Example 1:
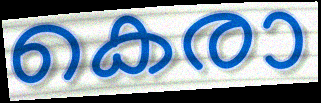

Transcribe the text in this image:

കെരാ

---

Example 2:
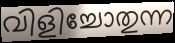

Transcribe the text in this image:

വിളിച്ചോതുന്ന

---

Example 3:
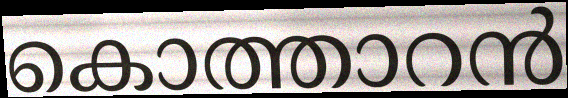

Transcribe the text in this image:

കൊത്താറൻ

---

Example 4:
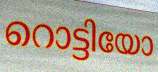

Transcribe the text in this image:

റൊട്ടിയോ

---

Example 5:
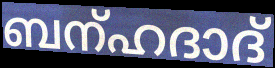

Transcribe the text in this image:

ബന്ഹദാദ്